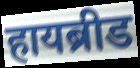
हायब्रीड